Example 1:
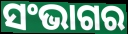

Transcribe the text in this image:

ସଂଭାଗର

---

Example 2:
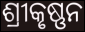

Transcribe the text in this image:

ଶ୍ରୀକୃଷ୍ଣନ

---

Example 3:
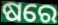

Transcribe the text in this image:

ଷରେ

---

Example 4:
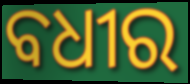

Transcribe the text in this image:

ବଧୀର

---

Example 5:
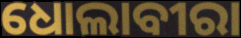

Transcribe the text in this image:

ଧୋଲାବୀରା